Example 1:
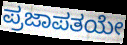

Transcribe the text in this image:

ಪ್ರಜಾಪತಯೇ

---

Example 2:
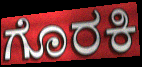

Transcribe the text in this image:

ಗೊರಕಿ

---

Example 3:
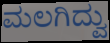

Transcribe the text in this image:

ಮಲಗಿದ್ವು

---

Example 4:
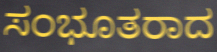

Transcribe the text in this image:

ಸಂಭೂತರಾದ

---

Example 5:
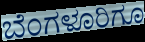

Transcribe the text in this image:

ಬೆಂಗಳೂರಿಗೂ